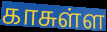
காசுள்ள